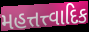
મહત્તત્ત્વાદિક